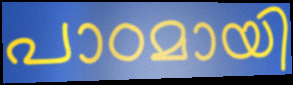
പാഠമായി